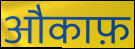
औकाफ़